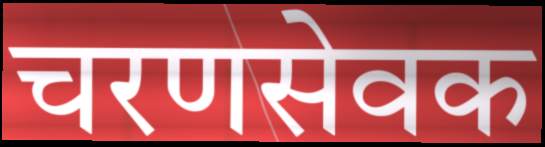
चरणसेवक